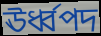
ঊর্ধ্বপদ